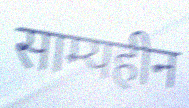
साम्यहीन